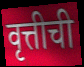
वृत्तीची